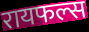
रायफल्स